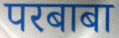
परबाबा